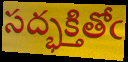
సద్భక్తితోఁ